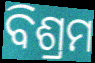
ବିଶ୍ରମ